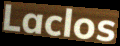
Laclos